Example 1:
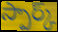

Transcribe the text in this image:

స్పార్క్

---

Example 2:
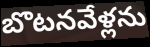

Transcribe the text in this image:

బొటనవేళ్లను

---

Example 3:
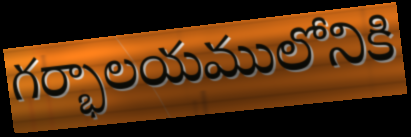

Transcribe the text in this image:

గర్భాలయములోనికి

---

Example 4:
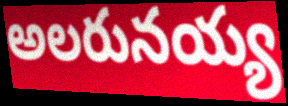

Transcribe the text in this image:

అలరునయ్య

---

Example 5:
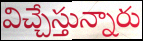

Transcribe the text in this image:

విచ్చేస్తున్నారు